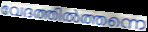
വേദത്തിൽത്തന്നെ